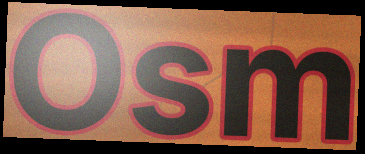
Osm